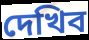
দেখিব